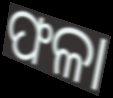
ଫଳା